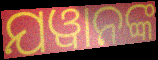
ଯୱାନଙ୍କ